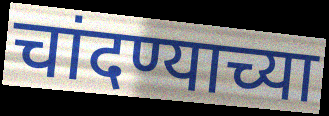
चांदण्याच्या